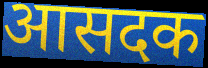
आसदक